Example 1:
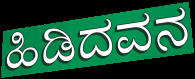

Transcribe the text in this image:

ಹಿಡಿದವನ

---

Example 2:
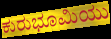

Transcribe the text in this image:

ಕುರುಭೂಮಿಯು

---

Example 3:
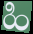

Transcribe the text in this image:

ಹಿ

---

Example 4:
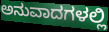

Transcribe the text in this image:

ಅನುವಾದಗಳಲ್ಲಿ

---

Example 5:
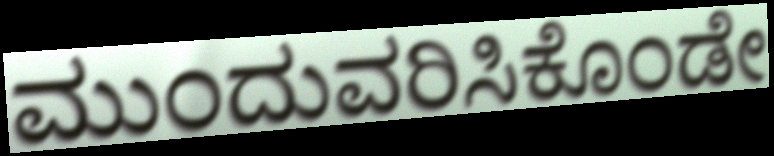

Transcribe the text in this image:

ಮುಂದುವರಿಸಿಕೊಂಡೇ